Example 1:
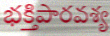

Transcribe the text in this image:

భక్తిపారవశ్య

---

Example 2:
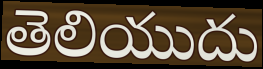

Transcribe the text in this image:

తెలియుదు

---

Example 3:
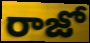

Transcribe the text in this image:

రాజో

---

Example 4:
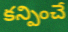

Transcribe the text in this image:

కన్పించే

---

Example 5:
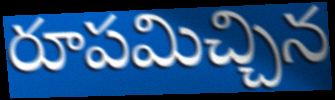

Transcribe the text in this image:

రూపమిచ్చిన